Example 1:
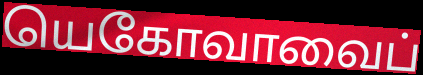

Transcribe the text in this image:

யெகோவாவைப்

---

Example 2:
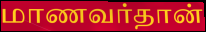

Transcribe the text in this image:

மாணவர்தான்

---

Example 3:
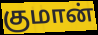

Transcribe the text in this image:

குமான்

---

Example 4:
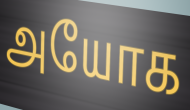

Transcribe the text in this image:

அயோக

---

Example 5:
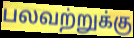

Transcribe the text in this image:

பலவற்றுக்கு